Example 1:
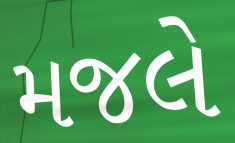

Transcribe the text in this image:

મજલે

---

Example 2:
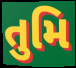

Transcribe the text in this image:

તુમિ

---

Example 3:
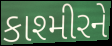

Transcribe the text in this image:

કાશ્મીરને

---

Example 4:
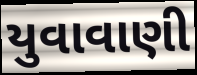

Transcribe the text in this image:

યુવાવાણી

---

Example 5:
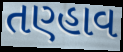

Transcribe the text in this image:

તણ્હાવ